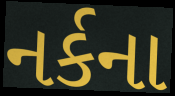
નર્કના